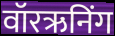
वॉरऋनिंग